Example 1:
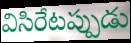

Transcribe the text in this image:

విసిరేటప్పుడు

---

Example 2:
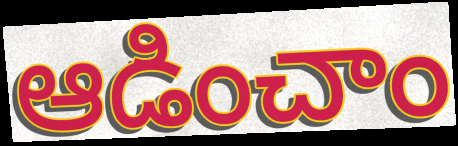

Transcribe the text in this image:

ఆడించాం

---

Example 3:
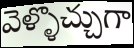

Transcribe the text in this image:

వెళ్ళొచ్చుగా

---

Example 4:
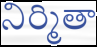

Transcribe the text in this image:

నిర్మితా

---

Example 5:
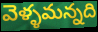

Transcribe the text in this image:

వెళ్ళమన్నది